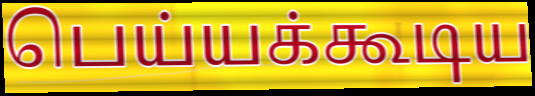
பெய்யக்கூடிய